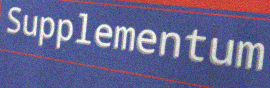
Supplementum